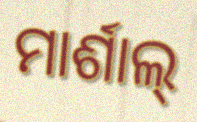
ମାର୍ଶାଲ୍